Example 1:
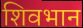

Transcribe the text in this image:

शिवभान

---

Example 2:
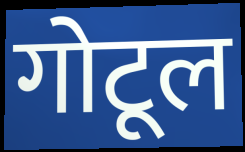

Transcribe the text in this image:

गोटूल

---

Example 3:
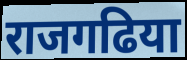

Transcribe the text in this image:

राजगढिया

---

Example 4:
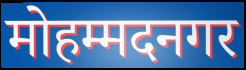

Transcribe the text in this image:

मोहम्मदनगर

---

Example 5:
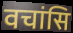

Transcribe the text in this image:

वचांसि